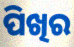
ପିଖିର